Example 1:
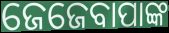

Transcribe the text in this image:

ଜେଜେବାପାଙ୍କ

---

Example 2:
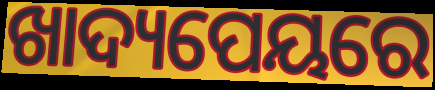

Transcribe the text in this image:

ଖାଦ୍ୟପେୟରେ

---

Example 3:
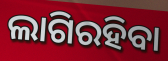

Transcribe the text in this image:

ଲାଗିରହିବା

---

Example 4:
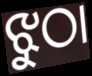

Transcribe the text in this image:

ଝୁଠା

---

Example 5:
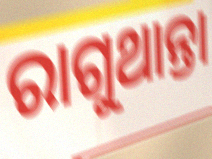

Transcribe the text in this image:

ରାଗୁଥାନ୍ତା